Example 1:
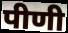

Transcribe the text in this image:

पीणी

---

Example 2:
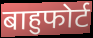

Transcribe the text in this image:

बाहुफोर्ट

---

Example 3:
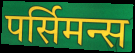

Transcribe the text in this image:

पर्सिमन्स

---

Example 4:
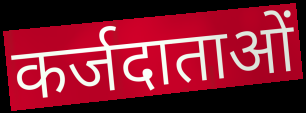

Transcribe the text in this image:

कर्जदाताओं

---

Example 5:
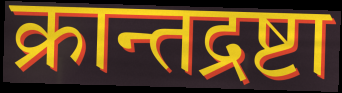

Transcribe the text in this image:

क्रान्तद्रष्टा